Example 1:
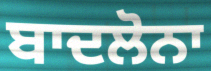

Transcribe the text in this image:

ਬਾਦਲੋਨਾ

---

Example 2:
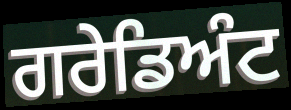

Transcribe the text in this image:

ਗਰੇਡਿਅੰਟ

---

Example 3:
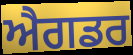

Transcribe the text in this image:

ਐਗਡਰ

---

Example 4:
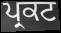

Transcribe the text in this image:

ਪ੍ਰਕਟ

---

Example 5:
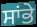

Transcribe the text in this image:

ਸਾਂਭੇ